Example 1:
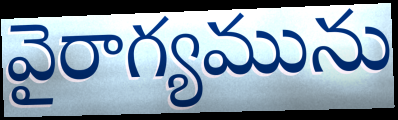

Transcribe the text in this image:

వైరాగ్యమును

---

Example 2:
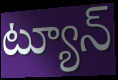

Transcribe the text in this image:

ట్యూన్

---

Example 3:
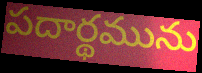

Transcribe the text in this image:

పదార్థమును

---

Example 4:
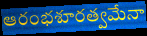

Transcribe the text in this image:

ఆరంభశూరత్వమేనా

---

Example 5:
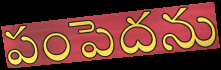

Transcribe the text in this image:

పంపెదను